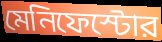
মেনিফেস্টোর